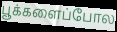
பூக்களைப்போல